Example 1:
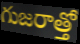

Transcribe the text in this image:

గుజరాత్తో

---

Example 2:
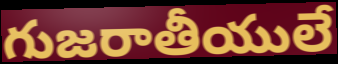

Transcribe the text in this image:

గుజరాతీయులే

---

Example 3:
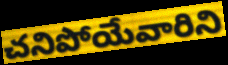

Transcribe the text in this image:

చనిపోయేవారిని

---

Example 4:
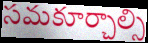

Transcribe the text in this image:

సమకూర్చాల్సి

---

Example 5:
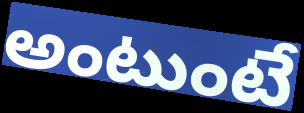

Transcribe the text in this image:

అంటుంటే